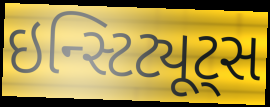
ઇન્સ્ટિટ્યૂટ્સ